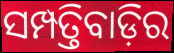
ସମ୍ପତ୍ତିବାଡ଼ିର